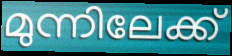
മുന്നിലേക്ക്